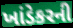
ખાંડેકરની